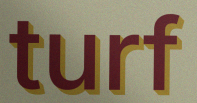
turf